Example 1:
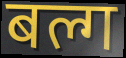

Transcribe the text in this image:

बल्ग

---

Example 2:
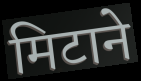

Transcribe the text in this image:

मिटाने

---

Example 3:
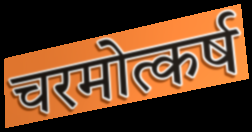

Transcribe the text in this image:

चरमोत्कर्ष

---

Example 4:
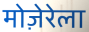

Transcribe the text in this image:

मोज़ेरेला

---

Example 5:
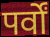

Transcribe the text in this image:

पर्वों